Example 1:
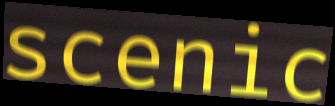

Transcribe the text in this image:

scenic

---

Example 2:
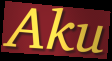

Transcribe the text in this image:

Aku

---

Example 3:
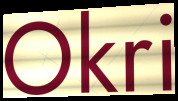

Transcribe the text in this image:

Okri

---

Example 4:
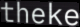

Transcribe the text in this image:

theke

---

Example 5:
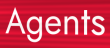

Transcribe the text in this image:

Agents